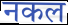
नकल